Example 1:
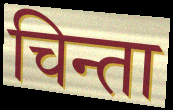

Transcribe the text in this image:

चिन्ता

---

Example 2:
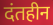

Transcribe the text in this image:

दंतहीन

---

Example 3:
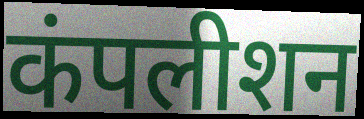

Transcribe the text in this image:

कंपलीशन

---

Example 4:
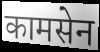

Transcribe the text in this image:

कामसेन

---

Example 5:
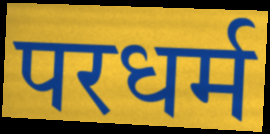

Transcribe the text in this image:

परधर्म